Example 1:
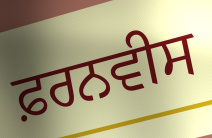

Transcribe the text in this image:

ਫ਼ਰਨਵੀਸ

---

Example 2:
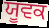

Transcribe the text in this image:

ਯੂਵਕ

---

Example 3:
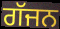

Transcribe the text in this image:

ਗੱਜਨ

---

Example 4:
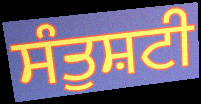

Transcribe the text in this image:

ਸੰਤੁਸ਼ਟੀ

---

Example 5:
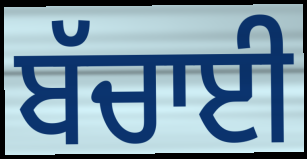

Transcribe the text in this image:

ਬੱਚਾਈ